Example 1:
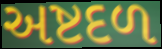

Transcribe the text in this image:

અષ્ટદળ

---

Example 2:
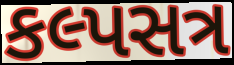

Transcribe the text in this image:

કલ્પસત્ર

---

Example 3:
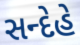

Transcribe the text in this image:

સન્દેહે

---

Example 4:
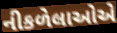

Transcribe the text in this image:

નીકળેલાઓએ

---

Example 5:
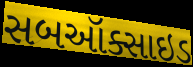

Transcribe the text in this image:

સબઑક્સાઇડ